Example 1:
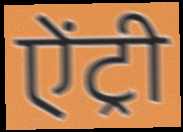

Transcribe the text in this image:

ऐंट्री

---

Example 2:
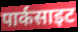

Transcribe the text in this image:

पार्कसाइट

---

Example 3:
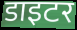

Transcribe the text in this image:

डाइटर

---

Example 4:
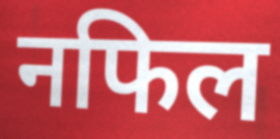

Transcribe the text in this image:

नफिल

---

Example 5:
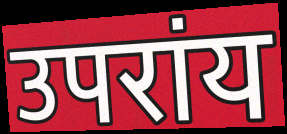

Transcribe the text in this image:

उपरांय